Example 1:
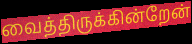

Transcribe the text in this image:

வைத்திருக்கின்றேன்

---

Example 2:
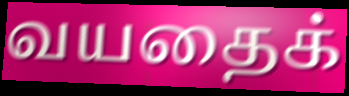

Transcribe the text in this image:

வயதைக்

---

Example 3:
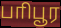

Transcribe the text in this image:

பரிபூர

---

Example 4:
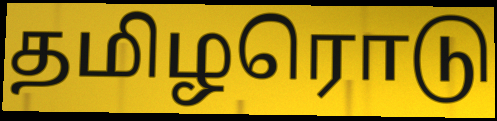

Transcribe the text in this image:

தமிழரொடு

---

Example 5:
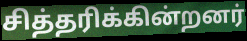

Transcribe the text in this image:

சித்தரிக்கின்றனர்